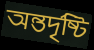
অন্তৰ্দৃষ্টি